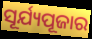
ସୂର୍ଯ୍ୟପୂଜାର